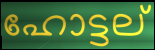
ഹോട്ടല്